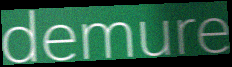
demure